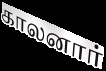
காலனார்